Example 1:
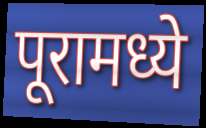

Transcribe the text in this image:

पूरामध्ये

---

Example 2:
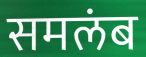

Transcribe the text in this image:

समलंब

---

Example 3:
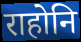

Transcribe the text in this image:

राहोनि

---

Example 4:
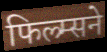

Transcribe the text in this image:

फिल्म्सने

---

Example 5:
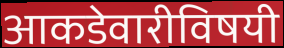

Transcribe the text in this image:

आकडेवारीविषयी